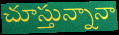
చూస్తున్నానా